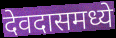
देवदासमध्ये